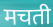
मचती